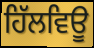
ਹਿੱਲਵਿਊ